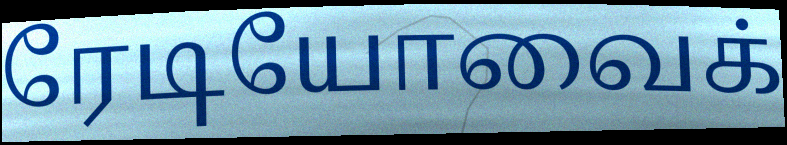
ரேடியோவைக்